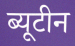
ब्यूटीन